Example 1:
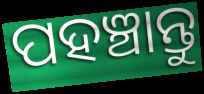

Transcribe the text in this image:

ପହଞ୍ଚାନ୍ତୁ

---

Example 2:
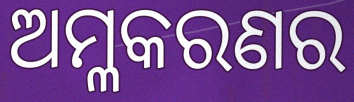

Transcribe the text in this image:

ଅମ୍ଳକରଣର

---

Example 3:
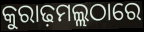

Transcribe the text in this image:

କୁରାଢ଼ମଲ୍ଲଠାରେ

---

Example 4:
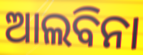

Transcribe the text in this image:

ଆଲବିନା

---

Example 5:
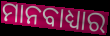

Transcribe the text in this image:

ମାନବାଧ୍ୟାର